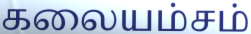
கலையம்சம்